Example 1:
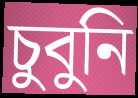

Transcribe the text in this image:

চুবুনি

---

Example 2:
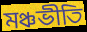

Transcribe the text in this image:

মঞ্চভীতি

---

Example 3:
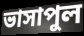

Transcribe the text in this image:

ভাসাপুল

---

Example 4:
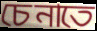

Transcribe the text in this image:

চেনাতে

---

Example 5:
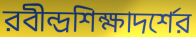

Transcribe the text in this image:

রবীন্দ্রশিক্ষাদর্শের